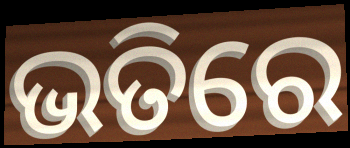
ଭତିରେ